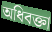
অধিবক্তা